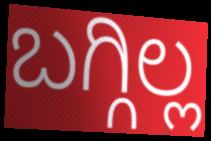
ಬಗ್ಗಿಲ್ಲ